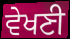
ਵੇਖਣੀ